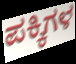
ಪಕ್ಕಿಗಳ